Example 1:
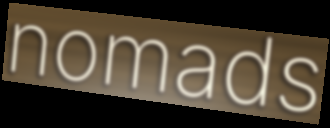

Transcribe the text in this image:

nomads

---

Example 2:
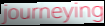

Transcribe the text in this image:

journeying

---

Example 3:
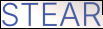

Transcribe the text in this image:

STEAR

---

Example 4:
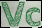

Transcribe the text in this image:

Vc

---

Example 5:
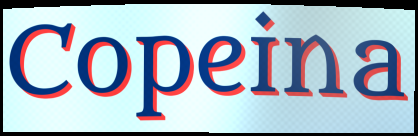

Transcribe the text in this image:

Copeina